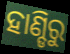
ହାଣ୍ଡିରୁ